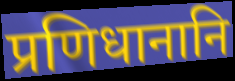
प्रणिधानानि